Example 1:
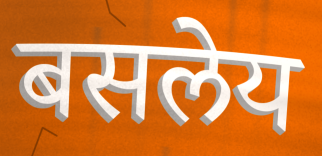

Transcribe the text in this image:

बसलेय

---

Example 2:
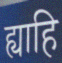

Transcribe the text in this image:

ह्याहि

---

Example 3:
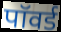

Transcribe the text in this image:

पॉवर्ड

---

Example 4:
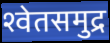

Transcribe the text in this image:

श्वेतसमुद्र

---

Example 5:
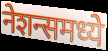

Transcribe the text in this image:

नेशन्समध्ये